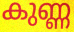
കുണ്ണ